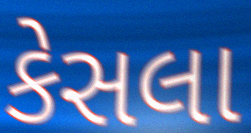
કેસલા